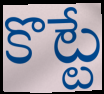
కొట్టే